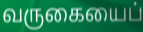
வருகையைப்